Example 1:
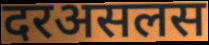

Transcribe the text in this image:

दरअसलस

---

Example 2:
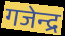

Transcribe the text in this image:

गजेन्द्र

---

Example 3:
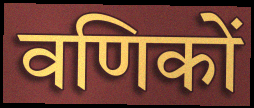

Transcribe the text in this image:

वणिकों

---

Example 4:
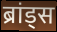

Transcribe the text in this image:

ब्रांड्स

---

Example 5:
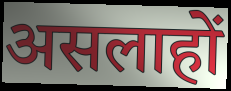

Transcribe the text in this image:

असलाहों